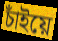
চাঁইয়ে